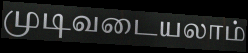
முடிவடையலாம்